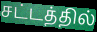
சட்டத்தில்